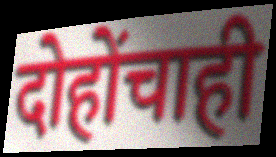
दोहोंचाही